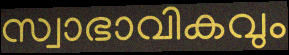
സ്വാഭാവികവും